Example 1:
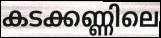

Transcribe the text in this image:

കടക്കണ്ണിലെ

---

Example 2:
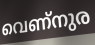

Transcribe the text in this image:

വെണ്നുര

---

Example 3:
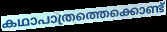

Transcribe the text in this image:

കഥാപാത്രത്തെക്കൊണ്ട്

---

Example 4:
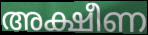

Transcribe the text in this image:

അക്ഷീണ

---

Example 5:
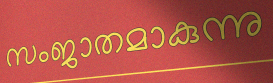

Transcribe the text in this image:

സംജാതമാകുന്നു